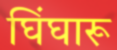
घिंघारू